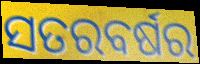
ସତରବର୍ଷର